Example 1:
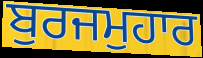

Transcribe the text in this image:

ਬੁਰਜਮੁਹਾਰ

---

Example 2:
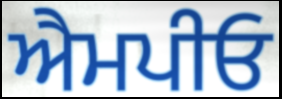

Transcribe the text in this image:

ਐਮਪੀਓ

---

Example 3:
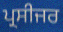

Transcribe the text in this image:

ਪ੍ਰਸੀਜਰ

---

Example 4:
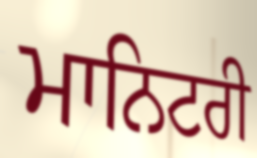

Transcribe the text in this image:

ਮਾਨਿਟਰੀ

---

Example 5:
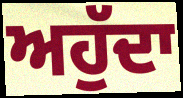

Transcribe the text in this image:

ਅਹੁੱਦਾ